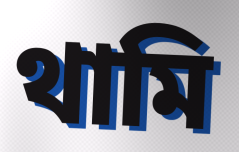
থামি